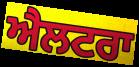
ਐਲਟਰਾ